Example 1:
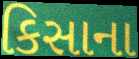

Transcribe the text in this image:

કિસાના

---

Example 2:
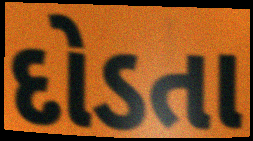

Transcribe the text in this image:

દોડતા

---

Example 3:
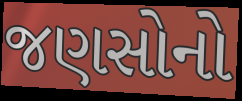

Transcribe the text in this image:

જણસોનો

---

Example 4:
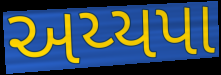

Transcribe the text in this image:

અય્યપા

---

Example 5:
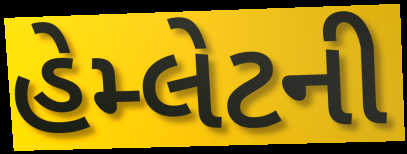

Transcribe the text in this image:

હેમ્લેટની